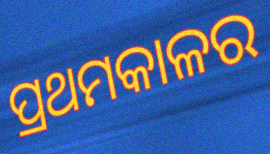
ପ୍ରଥମକାଳର